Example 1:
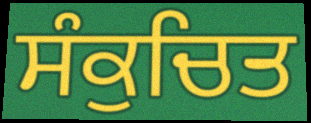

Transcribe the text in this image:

ਸੰਕੁਚਿਤ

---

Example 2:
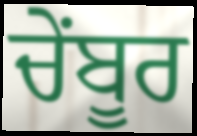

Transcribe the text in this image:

ਚੇਂਬੂਰ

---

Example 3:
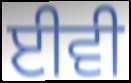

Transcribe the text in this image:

ਈਵੀ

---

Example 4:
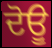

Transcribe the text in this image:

ਦੋਊ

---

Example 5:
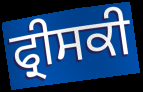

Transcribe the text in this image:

ਫ੍ਰੀਸਕੀ